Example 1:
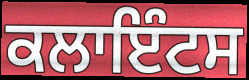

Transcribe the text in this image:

ਕਲਾਇੰਟਸ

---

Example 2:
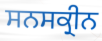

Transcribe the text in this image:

ਸਨਸਕ੍ਰੀਨ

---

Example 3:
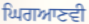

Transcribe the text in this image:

ਘਿਗਆਣਵੀ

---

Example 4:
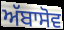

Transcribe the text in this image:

ਅੱਬਾਸੋਵ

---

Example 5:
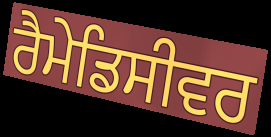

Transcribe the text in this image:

ਰੈਮੇਡਿਸੀਵਰ